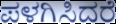
ಪಳಗಿಸಿದರೆ